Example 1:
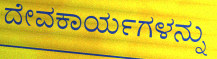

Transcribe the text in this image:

ದೇವಕಾರ್ಯಗಳನ್ನು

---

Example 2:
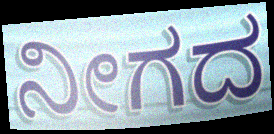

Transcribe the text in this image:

ನೀಗದ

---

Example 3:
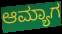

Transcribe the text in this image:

ಆಮ್ಯಾಗ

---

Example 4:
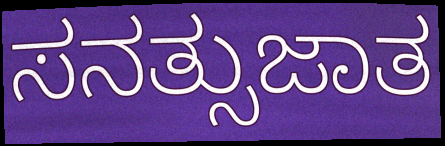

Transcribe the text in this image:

ಸನತ್ಸುಜಾತ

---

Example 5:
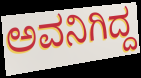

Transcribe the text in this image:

ಅವನಿಗಿದ್ದ